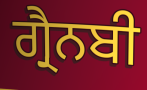
ਗ੍ਰੈਨਬੀ